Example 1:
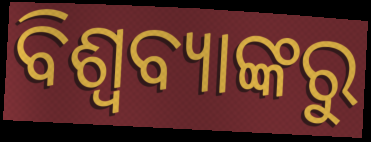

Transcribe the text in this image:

ବିଶ୍ୱବ୍ୟାଙ୍କରୁ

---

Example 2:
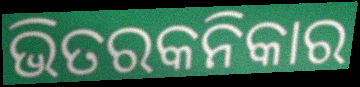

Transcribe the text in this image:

ଭିତରକନିକାର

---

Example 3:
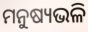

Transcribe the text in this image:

ମନୁଷ୍ୟଭଳି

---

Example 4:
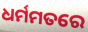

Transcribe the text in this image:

ଧର୍ମମତରେ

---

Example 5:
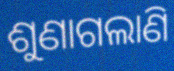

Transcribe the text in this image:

ଶୁଣାଗଲାଣି